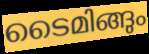
ടൈമിങ്ങും